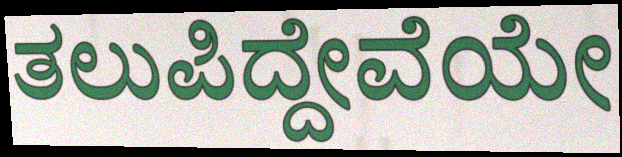
ತಲುಪಿದ್ದೇವೆಯೇ